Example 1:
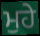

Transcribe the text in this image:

ਮੁਹੇ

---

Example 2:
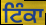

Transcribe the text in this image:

ਟਿੰਕਾ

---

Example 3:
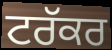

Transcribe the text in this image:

ਟਰੱਕਰ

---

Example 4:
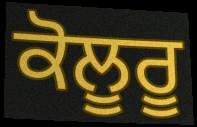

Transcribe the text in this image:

ਕੋਲੂਰੂ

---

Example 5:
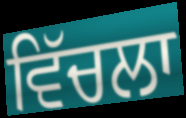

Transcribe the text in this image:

ਵਿੱਚਲਾ